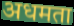
अधमता